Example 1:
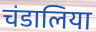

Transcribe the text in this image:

चंडालिया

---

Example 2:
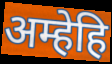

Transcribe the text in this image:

अम्हेहि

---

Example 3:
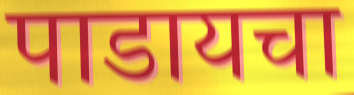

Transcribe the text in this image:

पाडायचा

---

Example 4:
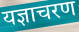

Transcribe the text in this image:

यज्ञाचरण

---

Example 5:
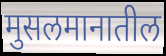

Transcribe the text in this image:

मुसलमानातील